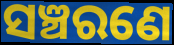
ସଞ୍ଚରଣେ